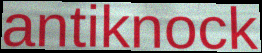
antiknock